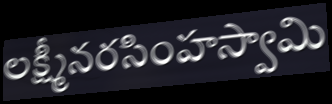
లక్ష్మీనరసింహస్వామి